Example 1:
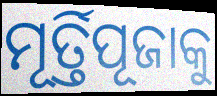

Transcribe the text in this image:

ମୂର୍ତ୍ତିପୂଜାକୁ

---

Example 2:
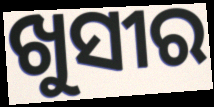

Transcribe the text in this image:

ଖୁସୀର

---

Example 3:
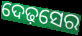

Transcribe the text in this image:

ଦେଢ଼ସେର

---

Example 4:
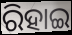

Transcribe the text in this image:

ରିହାଇ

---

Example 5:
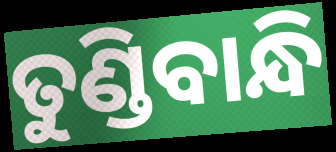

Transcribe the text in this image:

ତୁଣ୍ଡିବାନ୍ଧି